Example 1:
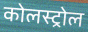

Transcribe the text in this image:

कोलस्ट्रोल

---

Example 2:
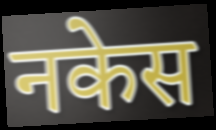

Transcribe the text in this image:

नकेस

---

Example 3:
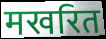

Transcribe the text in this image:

मखरित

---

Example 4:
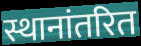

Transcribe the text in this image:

स्थानांतरित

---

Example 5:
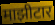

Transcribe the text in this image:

माझीटार